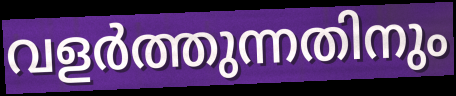
വളർത്തുന്നതിനും